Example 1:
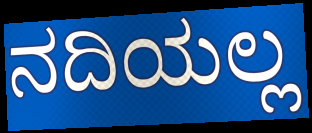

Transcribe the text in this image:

ನದಿಯಲ್ಲ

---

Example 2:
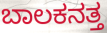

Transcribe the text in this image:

ಬಾಲಕನತ್ತ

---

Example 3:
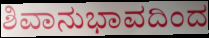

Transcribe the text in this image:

ಶಿವಾನುಭಾವದಿಂದ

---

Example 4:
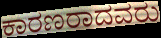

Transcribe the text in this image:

ಕಾರಣರಾದವರು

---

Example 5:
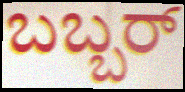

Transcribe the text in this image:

ಬಬ್ಬರ್